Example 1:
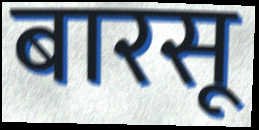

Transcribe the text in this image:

बारसू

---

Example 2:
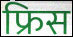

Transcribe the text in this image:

फ्रिस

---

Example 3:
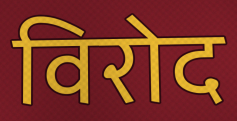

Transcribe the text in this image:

विरोद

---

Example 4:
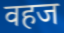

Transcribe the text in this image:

वहज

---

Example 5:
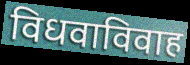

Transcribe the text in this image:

विधवाविवाह